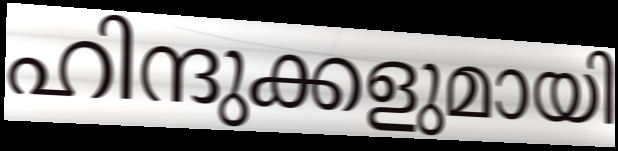
ഹിന്ദുക്കളുമായി